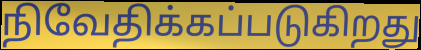
நிவேதிக்கப்படுகிறது